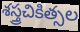
శస్త్రచికిత్సల